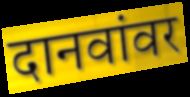
दानवांवर